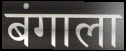
बंगाला